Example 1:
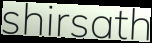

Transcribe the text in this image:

shirsath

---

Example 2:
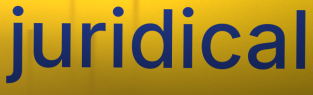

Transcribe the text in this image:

juridical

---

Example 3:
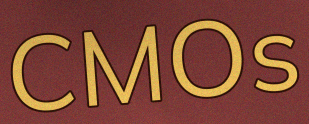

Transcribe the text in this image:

CMOs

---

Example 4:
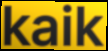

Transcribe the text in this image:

kaik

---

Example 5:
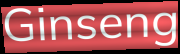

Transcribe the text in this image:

Ginseng